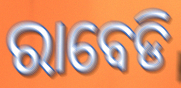
ରାବେଡି